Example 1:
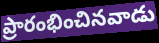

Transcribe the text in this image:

ప్రారంభించినవాడు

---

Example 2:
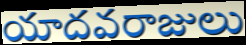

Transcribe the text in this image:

యాదవరాజులు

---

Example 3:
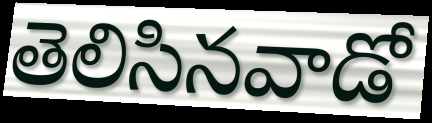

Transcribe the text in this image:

తెలిసినవాడో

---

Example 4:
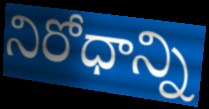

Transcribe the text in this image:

నిరోధాన్ని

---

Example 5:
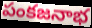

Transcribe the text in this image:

పంకజనాభ